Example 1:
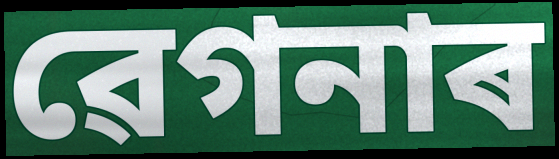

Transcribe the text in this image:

ৱেগনাৰ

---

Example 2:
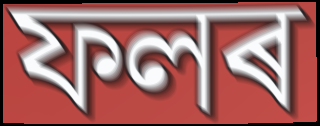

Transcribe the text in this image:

ফলৰ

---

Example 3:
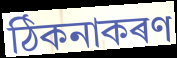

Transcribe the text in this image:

ঠিকনাকৰণ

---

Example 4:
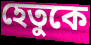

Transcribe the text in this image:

হেতুকে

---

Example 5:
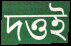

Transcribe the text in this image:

দত্তই